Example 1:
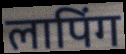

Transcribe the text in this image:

लापिंग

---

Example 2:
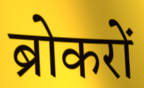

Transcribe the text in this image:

ब्रोकरों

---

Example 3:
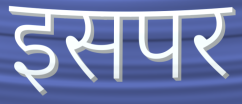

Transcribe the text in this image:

इसपर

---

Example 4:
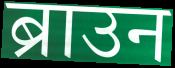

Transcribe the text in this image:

ब्राउन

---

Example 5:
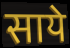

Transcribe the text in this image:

साये